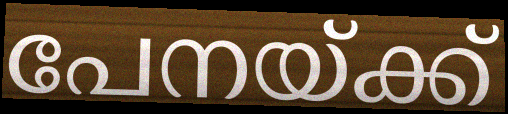
പേനയ്ക്ക്